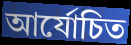
আর্যোচিত